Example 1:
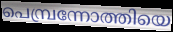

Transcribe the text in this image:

പെമ്പ്രന്നോത്തിയെ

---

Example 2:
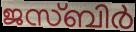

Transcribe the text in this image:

ജസ്ബിർ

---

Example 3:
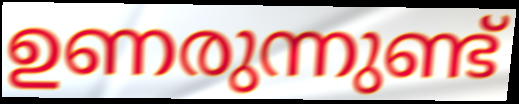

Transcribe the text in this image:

ഉണരുന്നുണ്ട്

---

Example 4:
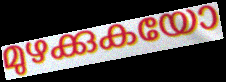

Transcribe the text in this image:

മുഴക്കുകയോ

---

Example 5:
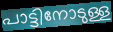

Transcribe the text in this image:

പാട്ടിനോടുള്ള